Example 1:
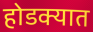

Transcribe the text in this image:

होडक्यात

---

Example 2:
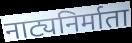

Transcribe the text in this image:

नाट्यनिर्माता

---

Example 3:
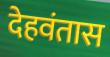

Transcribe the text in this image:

देहवंतास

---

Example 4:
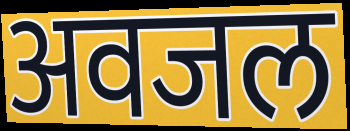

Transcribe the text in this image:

अवजल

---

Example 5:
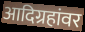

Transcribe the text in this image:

आदिग्रहांवर